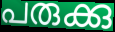
പരുക്കു